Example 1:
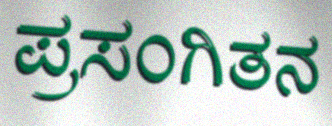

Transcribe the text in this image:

ಪ್ರಸಂಗಿತನ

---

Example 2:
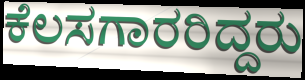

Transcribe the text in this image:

ಕೆಲಸಗಾರರಿದ್ದರು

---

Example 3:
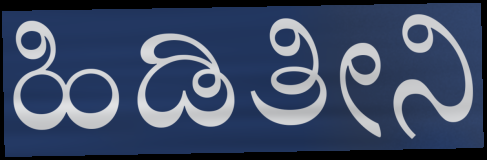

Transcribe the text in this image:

ಹಿಡಿತೀನಿ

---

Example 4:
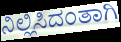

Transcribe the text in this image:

ನಿಲ್ಲಿಸಿದಂತಾಗಿ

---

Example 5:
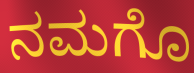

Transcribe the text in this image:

ನಮಗೊ